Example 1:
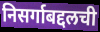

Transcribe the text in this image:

निसर्गाबद्दलची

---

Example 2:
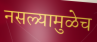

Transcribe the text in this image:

नसल्यामुळेच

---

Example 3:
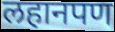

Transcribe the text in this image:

लहानपण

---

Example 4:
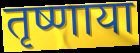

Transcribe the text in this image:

तृष्णाया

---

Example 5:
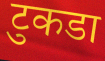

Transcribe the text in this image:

टुकडा